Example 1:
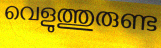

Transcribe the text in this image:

വെളുത്തുരുണ്ട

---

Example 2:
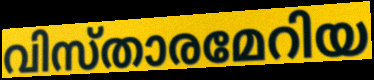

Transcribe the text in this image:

വിസ്താരമേറിയ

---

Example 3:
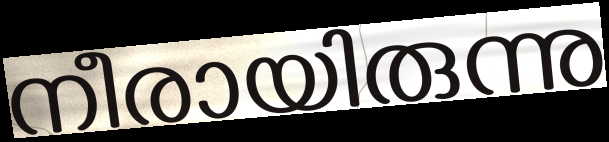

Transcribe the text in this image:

നീരായിരുന്നു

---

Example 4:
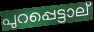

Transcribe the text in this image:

പുറപ്പെട്ടാല്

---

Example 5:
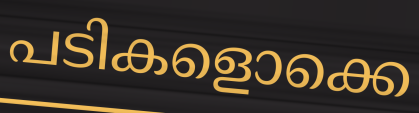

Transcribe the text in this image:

പടികളൊക്കെ